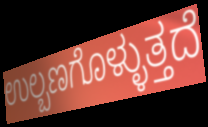
ಉಲ್ಬಣಗೊಳ್ಳುತ್ತದೆ